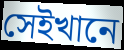
সেইখানে